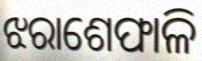
ଝରାଶେଫାଳି